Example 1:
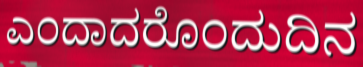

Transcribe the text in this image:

ಎಂದಾದರೊಂದುದಿನ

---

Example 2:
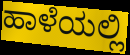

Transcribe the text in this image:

ಹಾಳೆಯಲ್ಲಿ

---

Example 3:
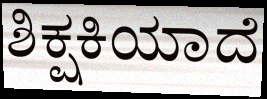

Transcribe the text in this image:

ಶಿಕ್ಷಕಿಯಾದೆ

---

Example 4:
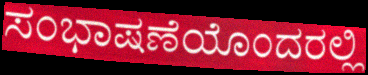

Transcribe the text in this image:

ಸಂಭಾಷಣೆಯೊಂದರಲ್ಲಿ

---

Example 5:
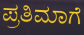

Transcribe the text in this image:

ಪ್ರತಿಮಾಗೆ